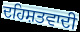
ਦਹਿਸ਼ਤਵਾਦੀ